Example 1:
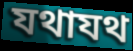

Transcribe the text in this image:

যথাযথ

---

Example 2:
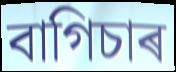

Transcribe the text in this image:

বাগিচাৰ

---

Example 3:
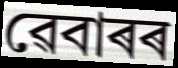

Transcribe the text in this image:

ৱেবাৰৰ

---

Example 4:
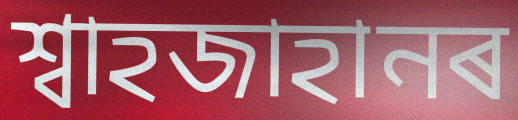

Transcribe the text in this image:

শ্বাহজাহানৰ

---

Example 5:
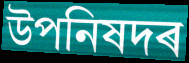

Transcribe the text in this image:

উপনিষদৰ